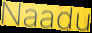
Naadu